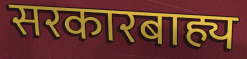
सरकारबाह्य